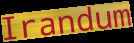
Irandum